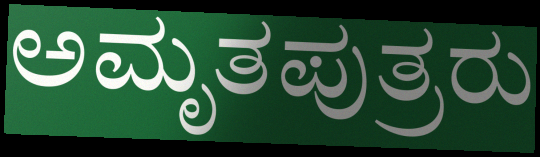
ಅಮೃತಪುತ್ರರು